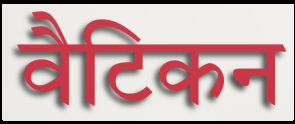
वैटिकन